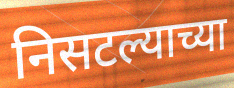
निसटल्याच्या